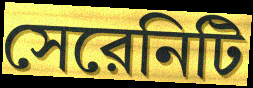
সেরেনিটি